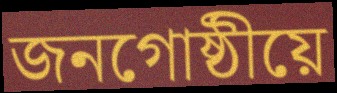
জনগোষ্ঠীয়ে